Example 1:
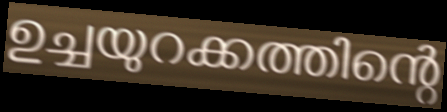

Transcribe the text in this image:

ഉച്ചയുറക്കത്തിന്റെ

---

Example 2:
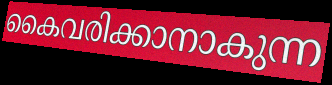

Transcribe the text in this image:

കൈവരിക്കാനാകുന്ന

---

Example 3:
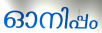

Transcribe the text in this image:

ഓനിപ്പം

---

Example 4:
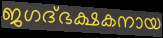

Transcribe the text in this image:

ജഗദ്ഭക്ഷകനായ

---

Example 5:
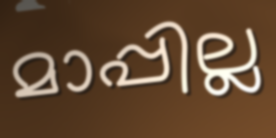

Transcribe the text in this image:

മാപ്പില്ല